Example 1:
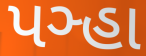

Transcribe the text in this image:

પઞ્હા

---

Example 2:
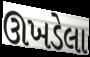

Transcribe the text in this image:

ઊખડેલા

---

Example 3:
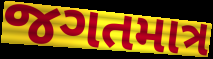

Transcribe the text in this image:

જગતમાત્ર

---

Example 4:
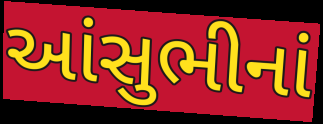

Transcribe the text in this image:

આંસુભીનાં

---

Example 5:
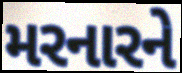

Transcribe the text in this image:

મરનારને